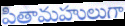
పితామహులుగా